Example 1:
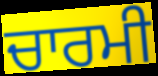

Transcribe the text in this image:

ਚਾਰਮੀ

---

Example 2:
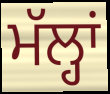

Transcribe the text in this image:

ਮੱਲ੍ਹਾਂ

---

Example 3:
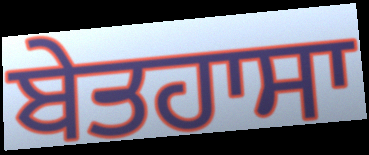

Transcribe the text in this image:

ਬੇਤਹਾਸਾ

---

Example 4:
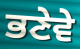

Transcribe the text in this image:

ਭਣੇਵੇ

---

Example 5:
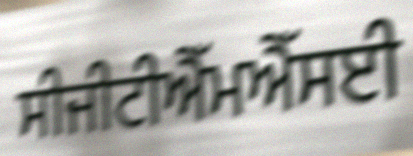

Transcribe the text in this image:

ਸੀਜੀਟੀਐੱਮਐੱਸਈ